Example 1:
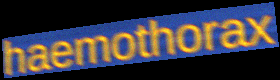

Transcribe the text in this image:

haemothorax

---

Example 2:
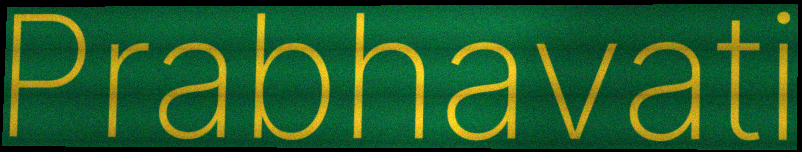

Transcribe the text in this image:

Prabhavati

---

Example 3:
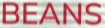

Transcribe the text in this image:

BEANS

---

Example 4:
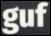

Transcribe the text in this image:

guf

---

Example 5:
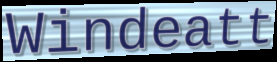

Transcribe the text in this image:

Windeatt